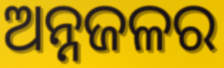
ଅନ୍ନଜଳର